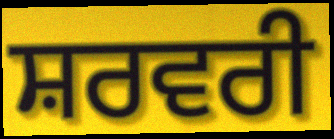
ਸ਼ਰਵਰੀ